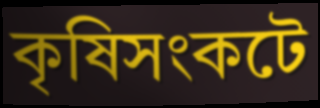
কৃষিসংকটে